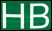
HB